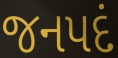
જનપદં